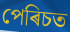
পেৰিচত